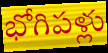
భోగిపళ్లు